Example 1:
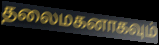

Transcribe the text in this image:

தலைமகனாகவும்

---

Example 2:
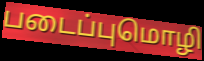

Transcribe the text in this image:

படைப்புமொழி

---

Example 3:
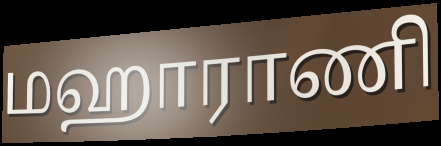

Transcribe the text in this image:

மஹாராணி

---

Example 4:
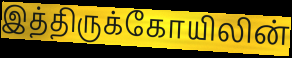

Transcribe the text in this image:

இத்திருக்கோயிலின்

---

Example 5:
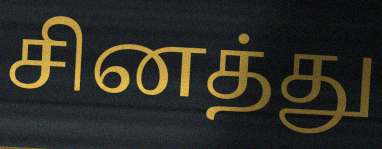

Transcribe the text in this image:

சினத்து